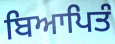
ਬਿਆਪਿਤੰ